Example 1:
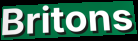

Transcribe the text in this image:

Britons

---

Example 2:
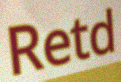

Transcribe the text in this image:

Retd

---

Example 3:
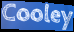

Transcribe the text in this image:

Cooley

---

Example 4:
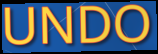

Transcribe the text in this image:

UNDO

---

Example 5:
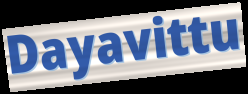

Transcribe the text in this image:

Dayavittu